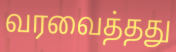
வரவைத்தது